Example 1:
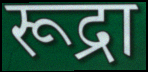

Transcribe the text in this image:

रूद्रा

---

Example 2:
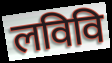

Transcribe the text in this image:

लविवि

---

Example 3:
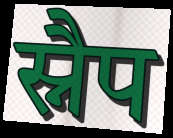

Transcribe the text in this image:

स्नैप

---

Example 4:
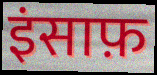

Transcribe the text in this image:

इंसाफ़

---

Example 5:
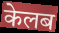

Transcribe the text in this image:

केलब